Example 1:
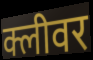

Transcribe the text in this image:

क्लीवर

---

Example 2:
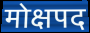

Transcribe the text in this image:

मोक्षपद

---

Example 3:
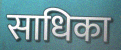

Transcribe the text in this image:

साधिका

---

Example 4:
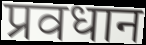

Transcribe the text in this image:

प्रवधान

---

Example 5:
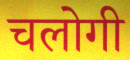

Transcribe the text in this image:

चलोगी